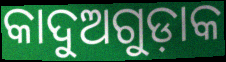
କାଦୁଅଗୁଡ଼ାକ